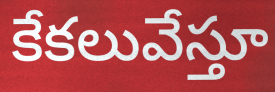
కేకలువేస్తూ